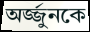
অর্জ্জুনকে